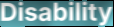
Disability